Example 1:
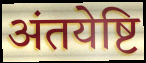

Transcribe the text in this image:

अंतयेष्टि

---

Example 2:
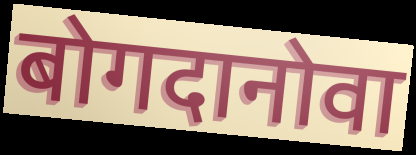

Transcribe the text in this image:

बोगदानोवा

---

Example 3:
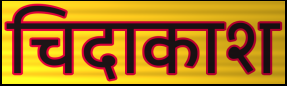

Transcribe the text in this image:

चिदाकाश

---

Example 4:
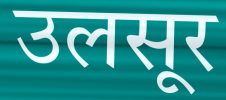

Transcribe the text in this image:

उलसूर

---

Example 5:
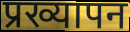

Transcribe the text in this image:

प्रख्यापन